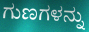
ಗುಣಗಳನ್ನು